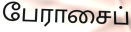
பேராசைப்